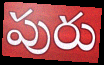
పురు